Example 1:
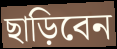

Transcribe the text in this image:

ছাড়িবেন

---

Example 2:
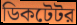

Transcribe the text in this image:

ডিকটেটর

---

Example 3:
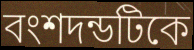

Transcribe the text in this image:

বংশদন্ডটিকে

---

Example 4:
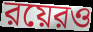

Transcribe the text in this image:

রয়েরও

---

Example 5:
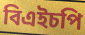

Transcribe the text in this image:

বিএইচপি